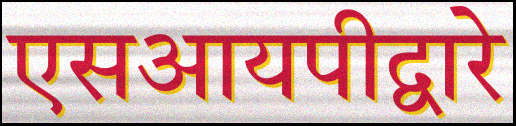
एसआयपीद्वारे